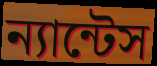
ন্যান্টেস